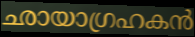
ഛായാഗ്രഹകൻ